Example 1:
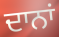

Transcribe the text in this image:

ਦਾਨਾਂ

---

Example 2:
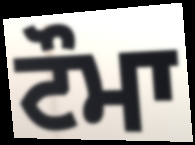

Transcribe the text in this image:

ਟੌਮਾ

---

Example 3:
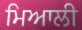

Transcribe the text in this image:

ਮਿਆਲੀ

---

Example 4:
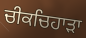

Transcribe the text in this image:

ਚੀਕਚਿਹਾੜਾ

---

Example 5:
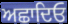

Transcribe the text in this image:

ਅਛਾਦਿਓ